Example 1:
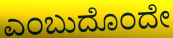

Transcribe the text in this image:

ಎಂಬುದೊಂದೇ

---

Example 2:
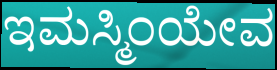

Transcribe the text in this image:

ಇಮಸ್ಮಿಂಯೇವ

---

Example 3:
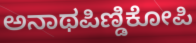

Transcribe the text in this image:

ಅನಾಥಪಿಣ್ಡಿಕೋಪಿ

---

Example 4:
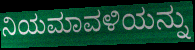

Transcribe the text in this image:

ನಿಯಮಾವಳಿಯನ್ನು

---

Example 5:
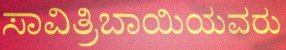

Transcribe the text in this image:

ಸಾವಿತ್ರಿಬಾಯಿಯವರು